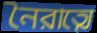
নৈরাত্মে